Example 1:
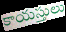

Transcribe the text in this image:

కాయస్తులు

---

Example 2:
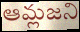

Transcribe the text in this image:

ఆమ్లజని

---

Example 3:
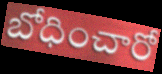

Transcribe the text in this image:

బోధించారో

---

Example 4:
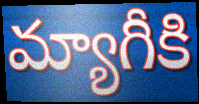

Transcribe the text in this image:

మ్యాగీకి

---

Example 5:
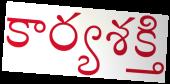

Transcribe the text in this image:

కార్యశక్తి